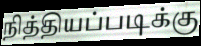
நித்தியப்படிக்கு